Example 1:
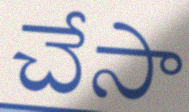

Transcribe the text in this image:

చేసా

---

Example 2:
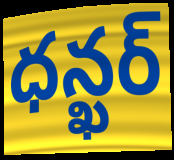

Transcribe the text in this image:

ధన్ఖర్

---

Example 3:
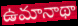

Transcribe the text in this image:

ఉమానాథా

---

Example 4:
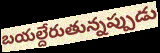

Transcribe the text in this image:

బయల్దేరుతున్నప్పుడు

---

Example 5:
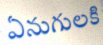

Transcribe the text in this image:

ఏనుగులకి